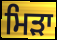
ਮਿੜਾ